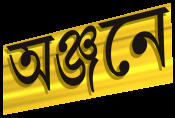
অঞ্জনে